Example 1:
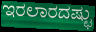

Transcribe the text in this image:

ಇರಲಾರದಷ್ಟು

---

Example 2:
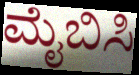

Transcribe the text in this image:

ಮೈಬಿಸಿ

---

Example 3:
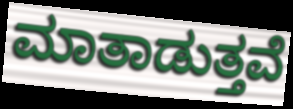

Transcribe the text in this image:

ಮಾತಾಡುತ್ತವೆ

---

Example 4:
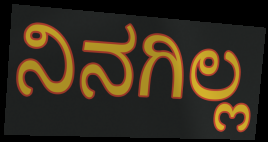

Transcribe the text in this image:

ನಿನಗಿಲ್ಲ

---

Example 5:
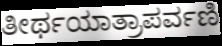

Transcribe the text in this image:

ತೀರ್ಥಯಾತ್ರಾಪರ್ವಣಿ